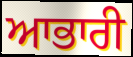
ਆਭਾਰੀ